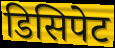
डिसिपेट